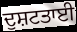
ਦੁਸ਼ਟਤਾਈ